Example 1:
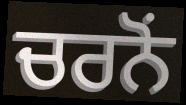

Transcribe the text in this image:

ਚਰਨੋਂ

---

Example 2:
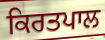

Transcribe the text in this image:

ਕਿਰਤਪਾਲ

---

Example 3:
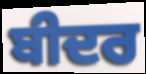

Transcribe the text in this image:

ਬੀਦਰ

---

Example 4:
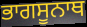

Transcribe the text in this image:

ਭਾਗਸੂਨਾਥ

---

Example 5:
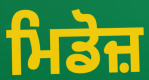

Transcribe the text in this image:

ਮਿਡੋਜ਼